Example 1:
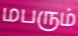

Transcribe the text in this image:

மபரும்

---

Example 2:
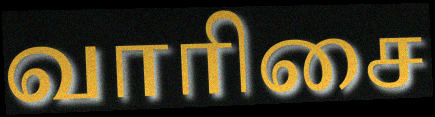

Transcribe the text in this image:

வாரிசை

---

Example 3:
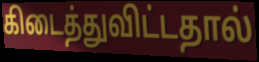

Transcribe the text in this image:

கிடைத்துவிட்டதால்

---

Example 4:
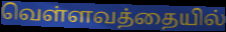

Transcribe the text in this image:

வெள்ளவத்தையில்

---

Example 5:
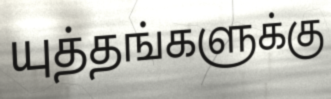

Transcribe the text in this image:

யுத்தங்களுக்கு